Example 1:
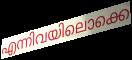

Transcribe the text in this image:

എന്നിവയിലൊക്കെ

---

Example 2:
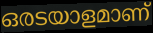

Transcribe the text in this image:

ഒരടയാളമാണ്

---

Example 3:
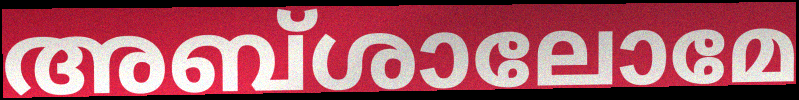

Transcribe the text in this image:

അബ്ശാലോമേ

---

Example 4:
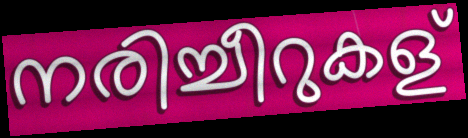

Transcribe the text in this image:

നരിച്ചീറുകള്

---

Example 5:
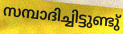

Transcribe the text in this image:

സമ്പാദിച്ചിട്ടുണ്ടു്